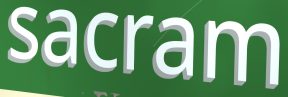
sacram